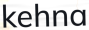
kehna